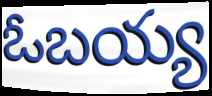
ఓబయ్య